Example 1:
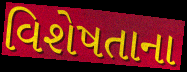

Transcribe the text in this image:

વિશેષતાના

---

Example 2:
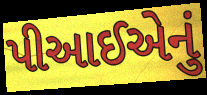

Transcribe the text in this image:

પીઆઈએનું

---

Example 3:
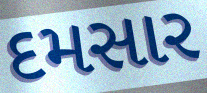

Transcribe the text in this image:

દમસાર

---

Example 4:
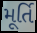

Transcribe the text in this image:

મૂર્તિ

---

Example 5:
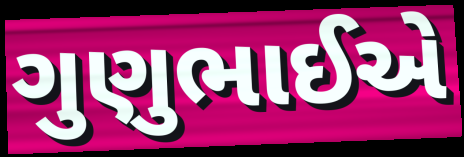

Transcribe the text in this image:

ગુણુભાઈએ